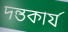
দন্তকার্য